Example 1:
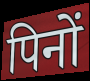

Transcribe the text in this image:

पिनों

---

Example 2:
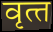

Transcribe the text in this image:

वृत्‍त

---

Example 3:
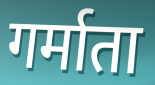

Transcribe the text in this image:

गर्माता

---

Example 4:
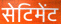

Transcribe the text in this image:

सेटिमेंट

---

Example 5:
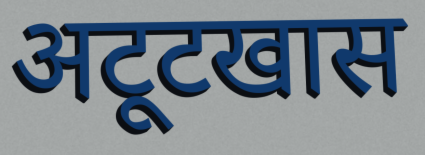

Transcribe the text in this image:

अटूटखास